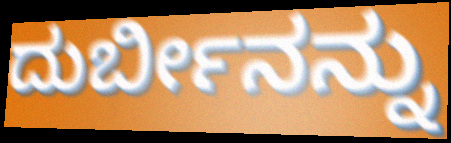
ದುರ್ಬೀನನ್ನು